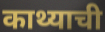
काथ्याची